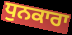
ਧੁਨਕਾਰਾ